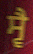
ਸ੍ਵੈ